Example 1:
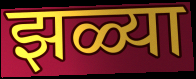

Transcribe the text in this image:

झळ्या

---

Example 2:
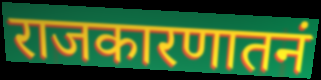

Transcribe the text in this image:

राजकारणातनं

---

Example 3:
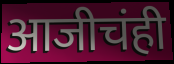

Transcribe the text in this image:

आजीचंही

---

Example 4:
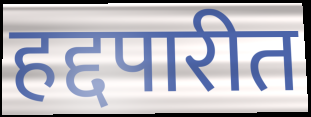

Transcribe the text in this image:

हद्दपारीत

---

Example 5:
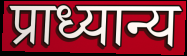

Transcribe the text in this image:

प्राध्यान्य